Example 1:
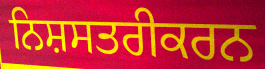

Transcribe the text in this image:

ਨਿਸ਼ਸਤਰੀਕਰਨ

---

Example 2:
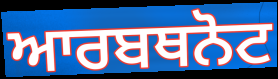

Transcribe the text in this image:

ਆਰਬਥਨੋਟ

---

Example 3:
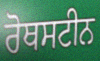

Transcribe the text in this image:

ਰੋਥਸਟੀਨ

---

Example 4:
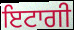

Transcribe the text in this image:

ਇਟਾਗੀ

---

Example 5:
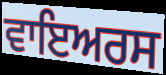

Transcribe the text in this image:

ਵਾਇਅਰਸ